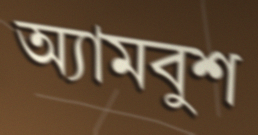
অ্যামবুশ